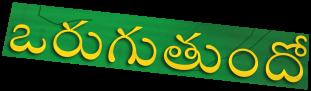
ఒరుగుతుందో